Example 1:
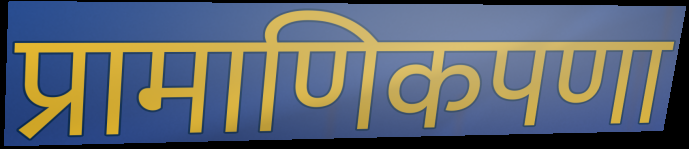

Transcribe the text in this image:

प्रामाणिकपणा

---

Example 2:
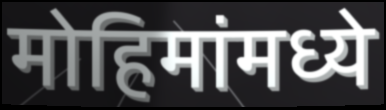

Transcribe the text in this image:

मोहिमांमध्ये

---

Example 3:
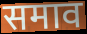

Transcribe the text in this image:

समाव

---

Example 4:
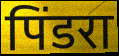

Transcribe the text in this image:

पिंडरा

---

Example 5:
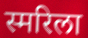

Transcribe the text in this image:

स्मरिला